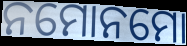
ନମୋନମୋ